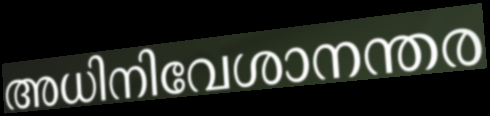
അധിനിവേശാനന്തര